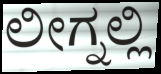
ಲೀಗ್ನಲ್ಲಿ